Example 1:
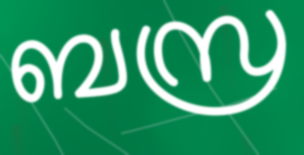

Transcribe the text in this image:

ബസ്ര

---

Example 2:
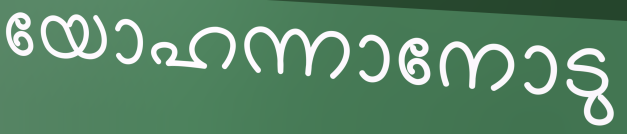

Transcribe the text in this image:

യോഹന്നാനോടു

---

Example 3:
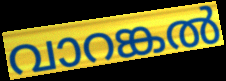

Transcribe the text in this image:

വാറങ്കൽ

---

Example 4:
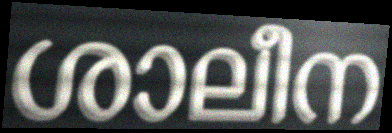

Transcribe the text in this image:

ശാലീന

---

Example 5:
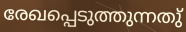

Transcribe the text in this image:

രേഖപ്പെടുത്തുന്നതു്